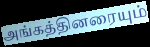
அங்கத்தினரையும்